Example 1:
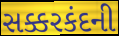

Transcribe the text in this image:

સક્કરકંદની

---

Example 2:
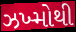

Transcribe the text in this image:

ઝખ્મોથી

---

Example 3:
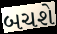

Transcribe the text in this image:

બચશે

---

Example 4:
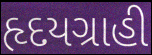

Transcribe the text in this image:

હૃદયગ્રાહી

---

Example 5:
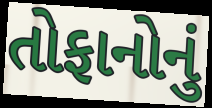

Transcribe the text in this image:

તોફાનોનું